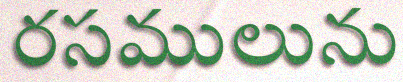
రసములును